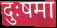
दुःषमा